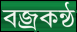
বজ্রকন্ঠ